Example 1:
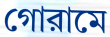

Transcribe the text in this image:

গোরামে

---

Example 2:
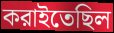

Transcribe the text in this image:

করাইতেছিল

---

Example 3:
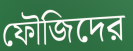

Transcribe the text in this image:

ফৌজিদের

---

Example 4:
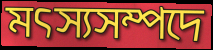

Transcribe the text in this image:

মৎস্যসম্পদে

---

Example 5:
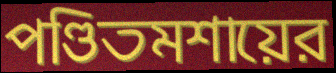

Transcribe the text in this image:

পণ্ডিতমশায়ের